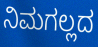
ನಿಮಗಲ್ಲದ